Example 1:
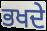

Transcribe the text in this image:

ਭਖਦੇ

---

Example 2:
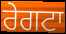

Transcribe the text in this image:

ਰੇਗਟਾ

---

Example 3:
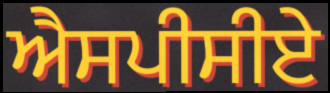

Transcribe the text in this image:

ਐਸਪੀਸੀਏ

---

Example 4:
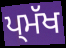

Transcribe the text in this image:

ਪ੍ਮੱਖ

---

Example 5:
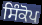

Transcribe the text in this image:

ਸਿੰਕੋਪ